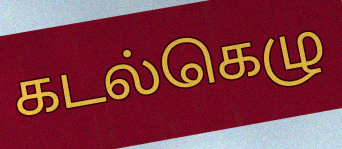
கடல்கெழு